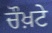
ਚੌਖ਼ਟੇ